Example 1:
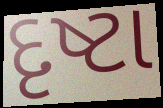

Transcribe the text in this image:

દૃષ્ટા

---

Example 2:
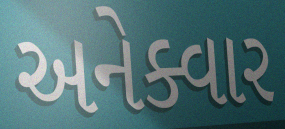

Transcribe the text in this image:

અનેક્વાર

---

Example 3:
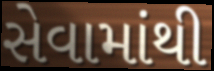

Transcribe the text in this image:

સેવામાંથી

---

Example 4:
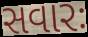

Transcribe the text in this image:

સવારઃ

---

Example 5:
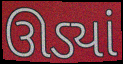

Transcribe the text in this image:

ઊડ્યાં